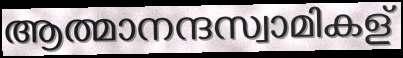
ആത്മാനന്ദസ്വാമികള്